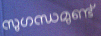
സുഗന്ധമുണ്ട്